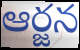
ఆర్జన